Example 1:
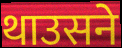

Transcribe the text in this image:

थाउसने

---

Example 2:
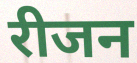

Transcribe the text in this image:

रीजन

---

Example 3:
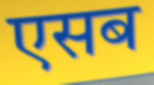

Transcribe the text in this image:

एसब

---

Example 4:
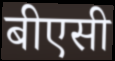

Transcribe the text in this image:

बीएसी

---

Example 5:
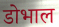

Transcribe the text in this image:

डोभाल